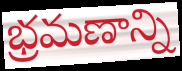
భ్రమణాన్ని